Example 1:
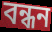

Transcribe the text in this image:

বন্ধন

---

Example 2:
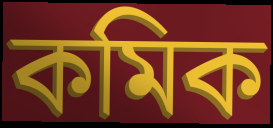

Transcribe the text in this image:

কমিক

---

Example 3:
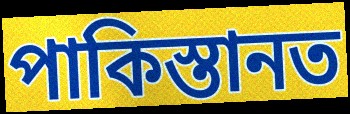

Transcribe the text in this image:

পাকিস্তানত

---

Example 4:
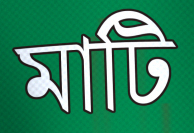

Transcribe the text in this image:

মাটি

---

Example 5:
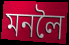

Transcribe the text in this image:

মনলৈ